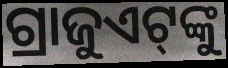
ଗ୍ରାଜୁଏଟ୍‌ଙ୍କୁ